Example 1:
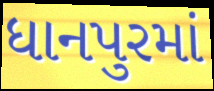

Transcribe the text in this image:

ધાનપુરમાં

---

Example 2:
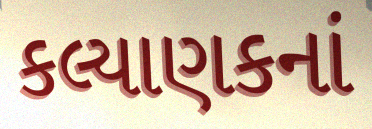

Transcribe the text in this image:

કલ્યાણકનાં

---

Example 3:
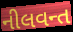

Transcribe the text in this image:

નીલવન્ત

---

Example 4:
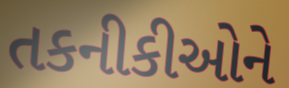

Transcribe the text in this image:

તકનીકીઓને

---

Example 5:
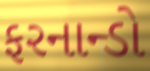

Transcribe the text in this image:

ફરનાન્ડો